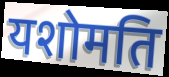
यशोमति